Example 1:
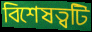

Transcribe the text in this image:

বিশেষত্বটি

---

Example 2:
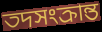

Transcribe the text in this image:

তদসংক্রান্ত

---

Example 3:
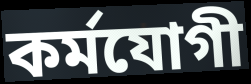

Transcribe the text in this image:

কর্মযোগী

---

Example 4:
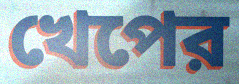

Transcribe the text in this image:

খেপের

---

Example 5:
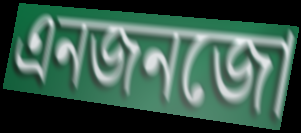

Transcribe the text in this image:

এনজনজো